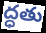
ద్ధతు